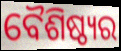
ବୈଶିଷ୍ଠ୍ୟର